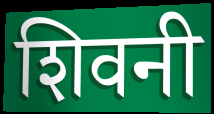
शिवनी